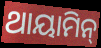
ଥାୟାମିନ୍